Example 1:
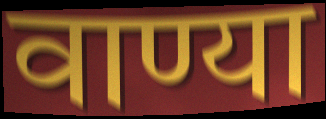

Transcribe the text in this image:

वाण्या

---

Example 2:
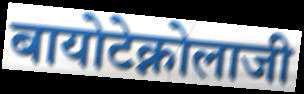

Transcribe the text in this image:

बायोटेक्नोलाजी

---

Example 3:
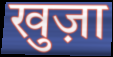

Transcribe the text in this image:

खुज़ा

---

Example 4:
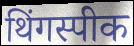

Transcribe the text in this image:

थिंगस्पीक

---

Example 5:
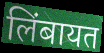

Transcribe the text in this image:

लिंबायत